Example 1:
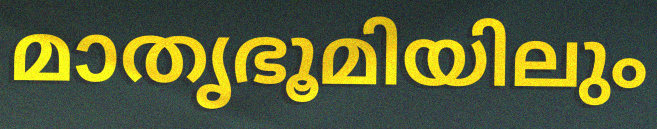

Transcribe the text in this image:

മാതൃഭൂമിയിലും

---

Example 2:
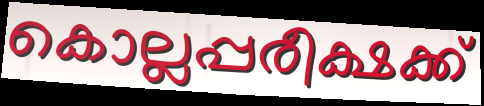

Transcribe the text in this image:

കൊല്ലപ്പരീക്ഷക്ക്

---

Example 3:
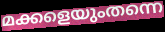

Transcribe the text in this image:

മക്കളെയുംതന്നെ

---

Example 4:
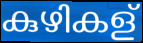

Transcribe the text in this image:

കുഴികള്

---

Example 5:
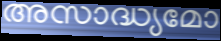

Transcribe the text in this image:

അസാദ്ധ്യമോ